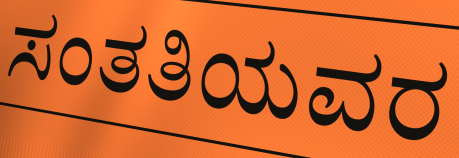
ಸಂತತಿಯವರ